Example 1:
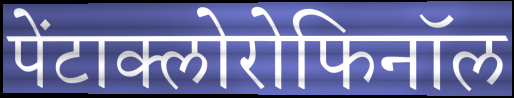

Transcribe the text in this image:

पेंटाक्लोरोफिनॉल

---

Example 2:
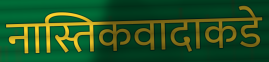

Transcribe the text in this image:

नास्तिकवादाकडे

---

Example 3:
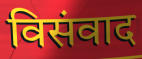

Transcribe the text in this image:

विसंवाद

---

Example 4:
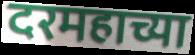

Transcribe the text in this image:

दरमहाच्या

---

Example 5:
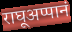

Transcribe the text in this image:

राघूअप्पानं